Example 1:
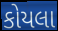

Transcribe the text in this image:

કોયલા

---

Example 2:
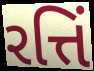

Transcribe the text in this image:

રત્તિં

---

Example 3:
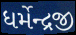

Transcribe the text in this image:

ધર્મેન્દ્રજી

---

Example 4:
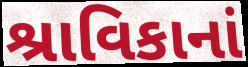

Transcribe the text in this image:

શ્રાવિકાનાં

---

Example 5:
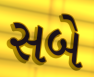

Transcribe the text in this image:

સબે